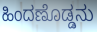
ಹಿಂದಣೊಡ್ಡನು